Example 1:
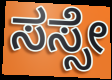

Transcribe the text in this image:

ಸಸ್ಸೇ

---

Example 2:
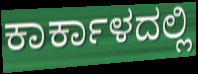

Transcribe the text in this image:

ಕಾರ್ಕಾಳದಲ್ಲಿ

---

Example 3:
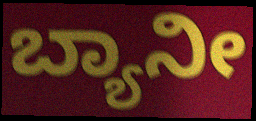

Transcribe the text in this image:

ಬ್ಯಾನೀ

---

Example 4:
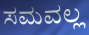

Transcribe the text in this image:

ಸಮವಲ್ಲ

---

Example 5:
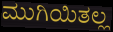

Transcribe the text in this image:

ಮುಗಿಯಿತಲ್ಲ